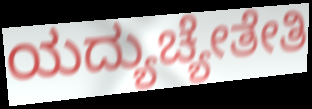
ಯದ್ಯುಚ್ಯೇತೇತಿ